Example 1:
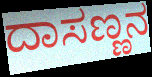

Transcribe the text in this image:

ದಾಸಣ್ಣನ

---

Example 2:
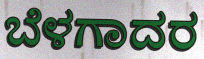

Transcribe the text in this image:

ಬೆಳಗಾದರ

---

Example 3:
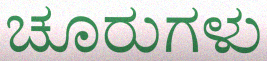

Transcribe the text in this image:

ಚೂರುಗಳು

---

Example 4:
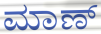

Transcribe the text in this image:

ಮಾಣ್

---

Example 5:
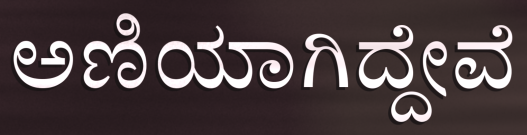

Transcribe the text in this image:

ಅಣಿಯಾಗಿದ್ದೇವೆ